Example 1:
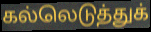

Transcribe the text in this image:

கல்லெடுத்துக்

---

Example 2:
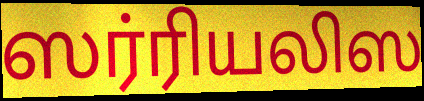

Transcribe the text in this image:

ஸர்ரியலிஸ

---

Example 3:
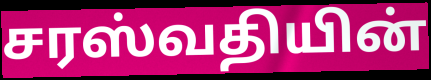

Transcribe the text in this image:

சரஸ்வதியின்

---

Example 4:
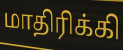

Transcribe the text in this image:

மாதிரிக்கி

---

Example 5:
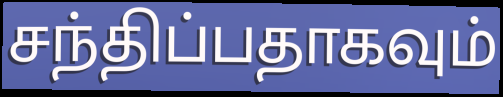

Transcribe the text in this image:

சந்திப்பதாகவும்